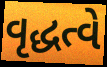
વૃદ્ધત્વે